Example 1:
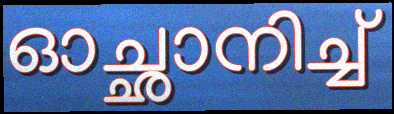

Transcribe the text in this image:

ഓച്ഛാനിച്ച്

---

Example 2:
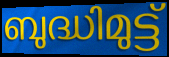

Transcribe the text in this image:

ബുദ്ധിമുട്ട്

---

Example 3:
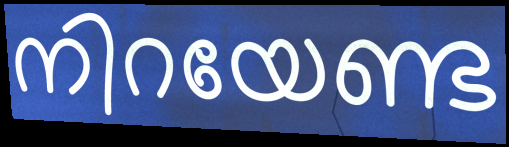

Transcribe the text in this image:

നിറയേണ്ട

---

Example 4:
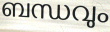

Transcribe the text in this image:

ബന്ധവും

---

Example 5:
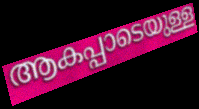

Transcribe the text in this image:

ആകപ്പാടെയുള്ള